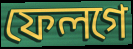
ফেলগে